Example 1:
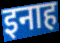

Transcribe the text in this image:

इनाह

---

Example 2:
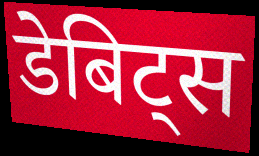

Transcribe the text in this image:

डेबिट्स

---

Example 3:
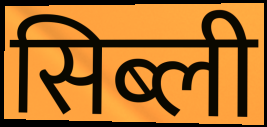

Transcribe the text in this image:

सिब्ली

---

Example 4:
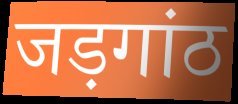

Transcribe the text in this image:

जड़गांठ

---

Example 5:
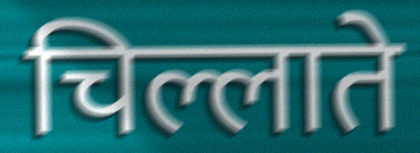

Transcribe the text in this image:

चिल्लाते